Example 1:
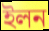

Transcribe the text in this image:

ইলন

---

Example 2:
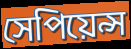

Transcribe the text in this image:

সেপিয়েন্স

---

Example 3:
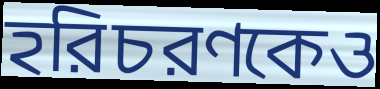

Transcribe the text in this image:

হরিচরণকেও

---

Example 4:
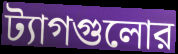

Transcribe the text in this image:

ট্যাগগুলোর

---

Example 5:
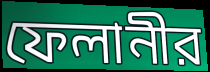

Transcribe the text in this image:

ফেলানীর